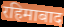
रहिमाबाद